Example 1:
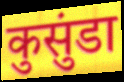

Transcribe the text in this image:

कुसुंडा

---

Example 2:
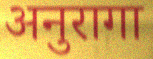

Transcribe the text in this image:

अनुरागा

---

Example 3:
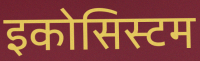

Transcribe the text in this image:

इकोसिस्टम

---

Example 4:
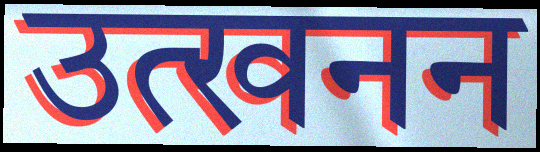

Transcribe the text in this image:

उत्‍खनन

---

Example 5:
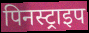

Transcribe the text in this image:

पिनस्ट्राइप